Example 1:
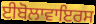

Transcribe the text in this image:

ਈਬੋਲਾਵਾਇਰਸ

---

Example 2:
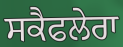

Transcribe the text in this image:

ਸਕੈਫਲੇਰਾ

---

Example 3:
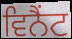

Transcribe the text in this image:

ਵਿਨੈਂਟ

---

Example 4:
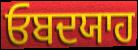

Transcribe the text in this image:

ਓਬਦਯਾਹ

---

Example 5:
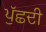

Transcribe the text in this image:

ਪੁੱਛਦੀ